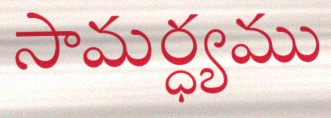
సామర్ధ్యము